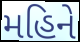
મહિને